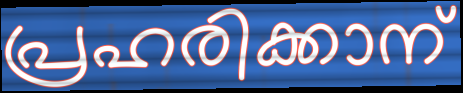
പ്രഹരിക്കാന്